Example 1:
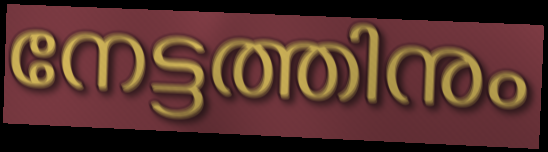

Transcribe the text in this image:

നേട്ടത്തിനും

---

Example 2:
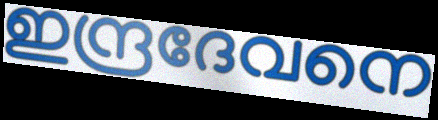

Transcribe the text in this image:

ഇന്ദ്രദേവനെ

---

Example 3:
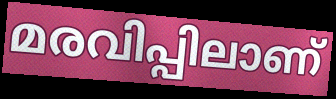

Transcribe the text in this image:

മരവിപ്പിലാണ്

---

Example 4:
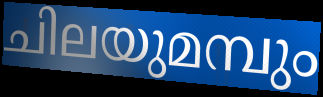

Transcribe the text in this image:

ചിലയുമമ്പും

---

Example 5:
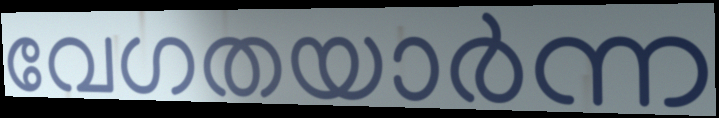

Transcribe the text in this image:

വേഗതയാർന്ന